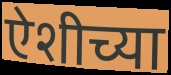
ऐशीच्या